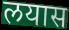
लयास